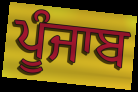
ਪੂੰਜਾਬ